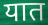
यात